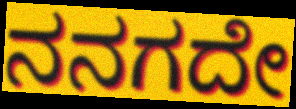
ನನಗದೇ